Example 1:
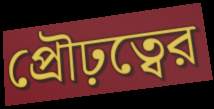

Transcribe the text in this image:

প্রৌঢ়ত্বের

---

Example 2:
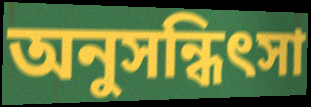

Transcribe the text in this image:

অনুসন্ধিৎসা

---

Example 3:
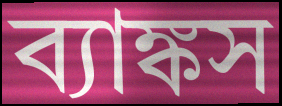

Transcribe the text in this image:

ব্যাঙ্কস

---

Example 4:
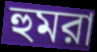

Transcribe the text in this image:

হুমরা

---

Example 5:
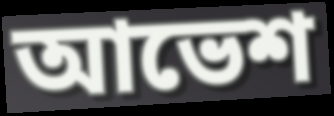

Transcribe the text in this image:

আভেশ